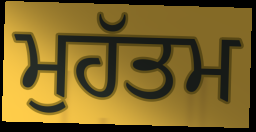
ਮੁਹੱਤਮ